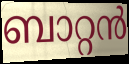
ബാറ്റൻ